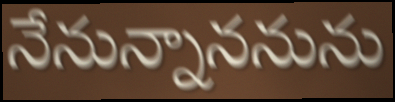
నేనున్నాననును